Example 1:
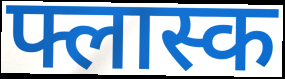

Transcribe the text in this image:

फ्लास्क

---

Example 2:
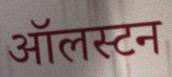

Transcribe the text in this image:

ऑलस्टन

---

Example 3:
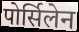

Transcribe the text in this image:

पोर्सिलेन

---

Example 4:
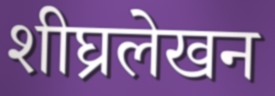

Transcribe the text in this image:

शीघ्रलेखन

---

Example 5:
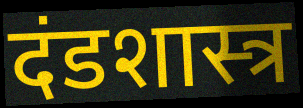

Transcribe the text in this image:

दंडशास्त्र